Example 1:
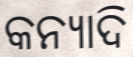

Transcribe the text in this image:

କନ୍ୟାଦି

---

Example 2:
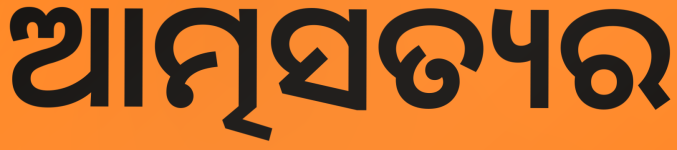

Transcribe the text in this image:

ଆତ୍ମସତ୍ୟର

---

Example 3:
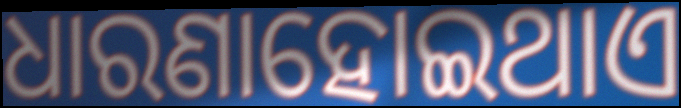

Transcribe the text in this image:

ଧାରଣାହୋଇଥାଏ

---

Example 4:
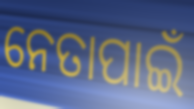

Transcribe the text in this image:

ନେତାପାଇଁ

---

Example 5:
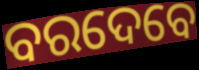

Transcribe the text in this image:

ବରଦେବେ